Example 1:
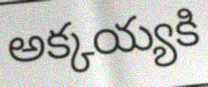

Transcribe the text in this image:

అక్కయ్యకి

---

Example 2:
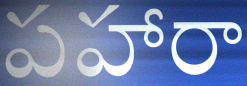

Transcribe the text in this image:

పహారా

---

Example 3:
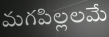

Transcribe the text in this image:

మగపిల్లలమే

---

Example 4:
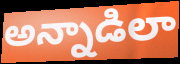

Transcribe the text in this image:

అన్నాడిలా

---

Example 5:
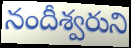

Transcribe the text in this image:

నందీశ్వరుని